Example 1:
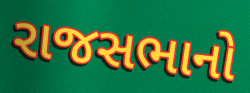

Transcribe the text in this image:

રાજસભાનો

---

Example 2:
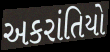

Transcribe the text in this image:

અકરાંતિયો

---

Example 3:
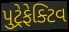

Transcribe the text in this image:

પુટ્રેફેક્ટિવ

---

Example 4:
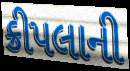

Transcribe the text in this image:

ક્રીપલાની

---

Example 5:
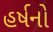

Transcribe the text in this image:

હર્ષનો